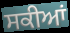
ਸਕੀਆਂ